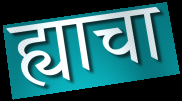
ह्याचा